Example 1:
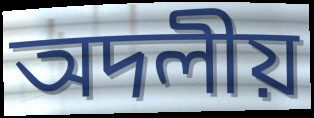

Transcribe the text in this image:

অদলীয়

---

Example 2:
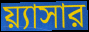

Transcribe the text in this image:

য়্যাসার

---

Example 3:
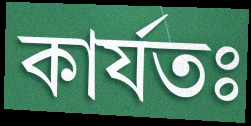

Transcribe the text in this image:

কার্যতঃ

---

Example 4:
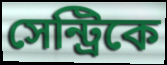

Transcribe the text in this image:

সেন্ট্রিকে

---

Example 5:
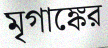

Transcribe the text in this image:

মৃগাঙ্কের